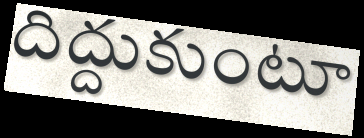
దిద్దుకుంటూ